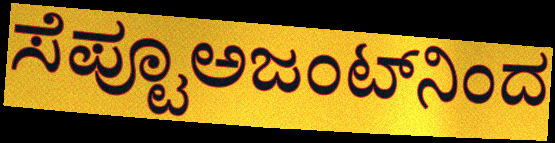
ಸೆಪ್ಟೂಅಜಂಟ್‌ನಿಂದ